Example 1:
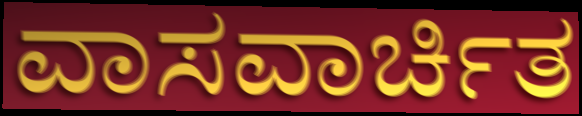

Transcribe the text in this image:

ವಾಸವಾರ್ಚಿತ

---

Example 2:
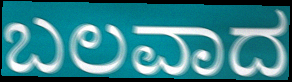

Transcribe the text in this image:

ಬಲವಾದ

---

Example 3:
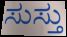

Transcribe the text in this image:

ಸುಸ್ತು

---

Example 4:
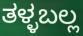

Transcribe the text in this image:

ತಳ್ಳಬಲ್ಲ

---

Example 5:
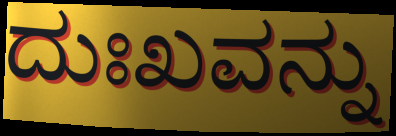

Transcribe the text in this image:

ದುಃಖವನ್ನು